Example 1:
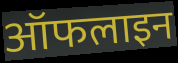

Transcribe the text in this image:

ऑफलाइन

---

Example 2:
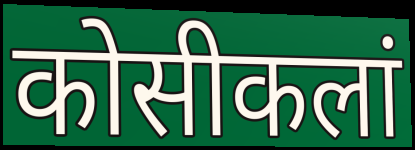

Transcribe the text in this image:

कोसीकलां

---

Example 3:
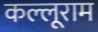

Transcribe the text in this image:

कल्लूराम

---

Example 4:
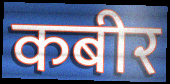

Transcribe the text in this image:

कबीर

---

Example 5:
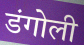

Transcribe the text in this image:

डंगोली